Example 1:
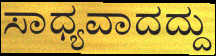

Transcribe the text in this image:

ಸಾಧ್ಯವಾದದ್ದು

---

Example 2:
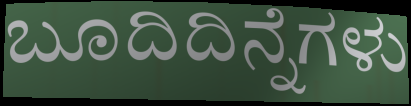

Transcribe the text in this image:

ಬೂದಿದಿನ್ನೆಗಳು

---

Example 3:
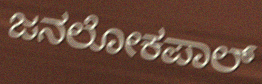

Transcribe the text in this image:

ಜನಲೋಕಪಾಲ್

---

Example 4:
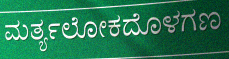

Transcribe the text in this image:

ಮರ್ತ್ಯಲೋಕದೊಳಗಣ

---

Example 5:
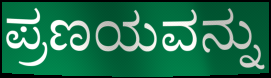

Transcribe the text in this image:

ಪ್ರಣಯವನ್ನು